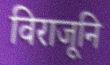
विराजूनि